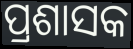
ପ୍ରଶାସକ